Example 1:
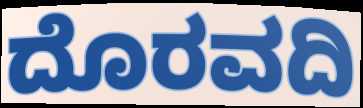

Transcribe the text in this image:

ದೊರವದಿ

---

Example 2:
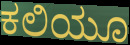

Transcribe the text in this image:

ಕಲಿಯೂ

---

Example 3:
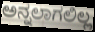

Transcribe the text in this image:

ಅನ್ನಲಾಗಲಿಲ್ಲ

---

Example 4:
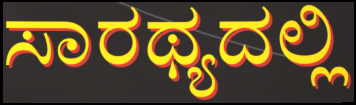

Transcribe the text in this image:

ಸಾರಥ್ಯದಲ್ಲಿ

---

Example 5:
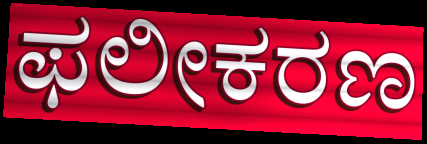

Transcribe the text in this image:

ಫಲೀಕರಣ